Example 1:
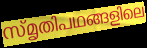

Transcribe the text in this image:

സ്മൃതിപഥങ്ങളിലെ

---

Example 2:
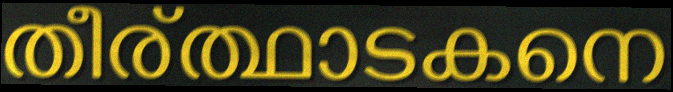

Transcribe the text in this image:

തീര്ത്ഥാടകനെ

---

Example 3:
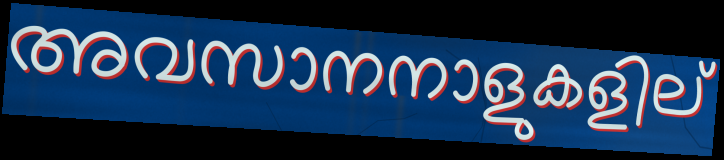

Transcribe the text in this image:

അവസാനനാളുകളില്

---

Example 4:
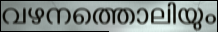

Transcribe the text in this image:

വഴനത്തൊലിയും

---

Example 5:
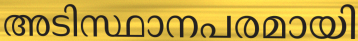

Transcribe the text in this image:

അടിസ്ഥാനപരമായി